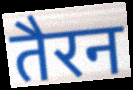
तैरन